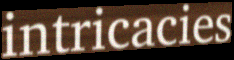
intricacies